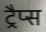
ट्रैप्स